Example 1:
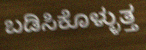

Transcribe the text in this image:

ಬಡಿಸಿಕೊಳ್ಳುತ್ತ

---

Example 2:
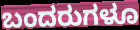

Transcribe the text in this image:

ಬಂದರುಗಳೂ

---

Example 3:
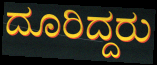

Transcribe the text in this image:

ದೂರಿದ್ದರು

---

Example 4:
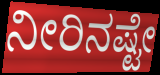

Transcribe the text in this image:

ನೀರಿನಷ್ಟೇ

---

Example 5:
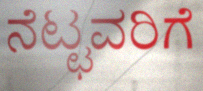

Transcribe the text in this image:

ನೆಟ್ಟವರಿಗೆ